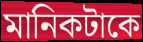
মানিকটাকে